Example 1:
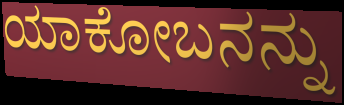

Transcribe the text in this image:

ಯಾಕೋಬನನ್ನು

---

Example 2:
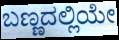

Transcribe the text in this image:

ಬಣ್ಣದಲ್ಲಿಯೇ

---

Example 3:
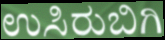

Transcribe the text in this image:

ಉಸಿರುಬಿಗಿ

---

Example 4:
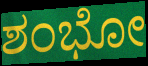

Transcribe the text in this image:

ಶಂಭೋ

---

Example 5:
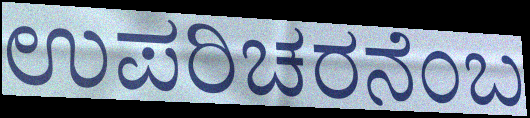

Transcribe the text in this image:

ಉಪರಿಚರನೆಂಬ